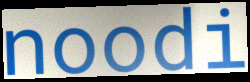
noodi